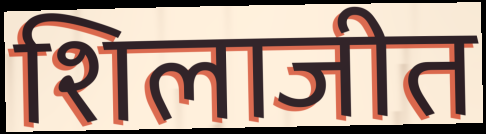
शिलाजीत